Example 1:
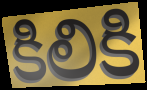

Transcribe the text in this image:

కిలికి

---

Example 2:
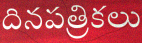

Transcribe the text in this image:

దినపత్రికలు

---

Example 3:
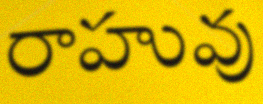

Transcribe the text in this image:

రాహువు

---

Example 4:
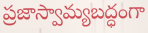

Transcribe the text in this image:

ప్రజాస్వామ్యబద్ధంగా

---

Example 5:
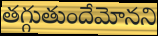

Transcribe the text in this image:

తగ్గుతుందేమోనని